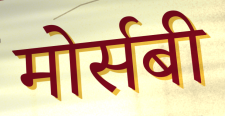
मोर्सबी